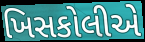
ખિસકોલીએ